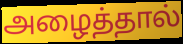
அழைத்தால்